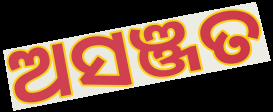
ଅସଞ୍ଜତ